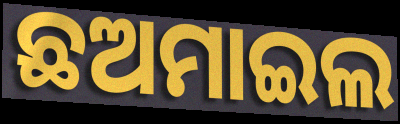
ଛଅମାଇଲ